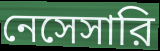
নেসেসারি